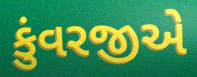
કુંવરજીએ